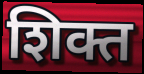
शिक्त